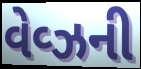
વેવ્ઝની